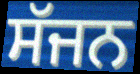
ਸੱਜਨ